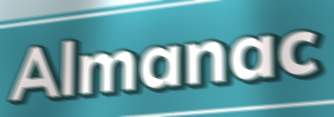
Almanac